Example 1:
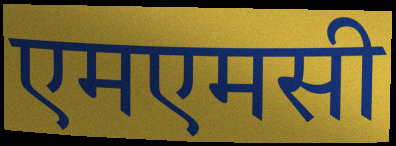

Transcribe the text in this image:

एमएमसी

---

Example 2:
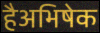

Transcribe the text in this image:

हैअभिषेक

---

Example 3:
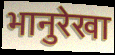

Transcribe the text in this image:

भानुरेखा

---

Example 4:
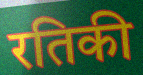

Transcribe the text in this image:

रतिकी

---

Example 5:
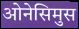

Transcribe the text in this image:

ओनेसिमुस